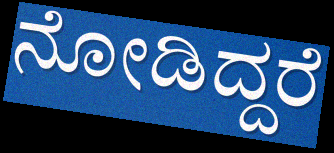
ನೋಡಿದ್ದರೆ